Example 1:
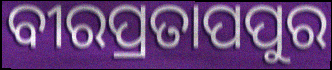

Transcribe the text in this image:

ବୀରପ୍ରତାପପୁର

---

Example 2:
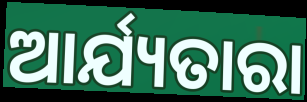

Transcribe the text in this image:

ଆର୍ଯ୍ୟତାରା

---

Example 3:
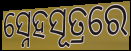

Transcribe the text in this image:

ସ୍ନେହସୂତ୍ରରେ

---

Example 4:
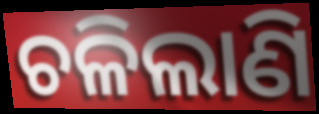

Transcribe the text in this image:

ଚଳିଲାଣି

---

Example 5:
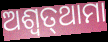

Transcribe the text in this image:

ଅଶ୍ଵତ୍‌ଥାମା